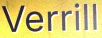
Verrill